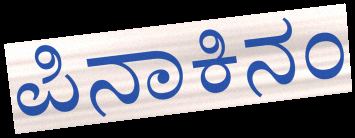
ಪಿನಾಕಿನಂ